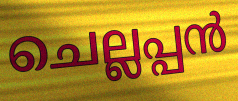
ചെല്ലപ്പൻ